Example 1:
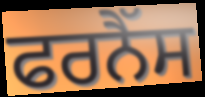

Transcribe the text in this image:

ਫਰਨੈੱਸ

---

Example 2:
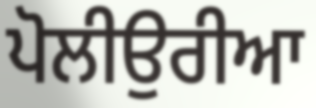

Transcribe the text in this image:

ਪੋਲੀਉਰੀਆ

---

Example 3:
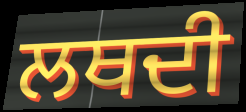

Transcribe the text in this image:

ਲਥਦੀ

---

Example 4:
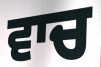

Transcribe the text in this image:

ਵਾਚ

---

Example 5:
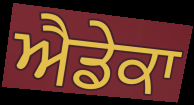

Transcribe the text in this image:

ਐਡੇਕਾ